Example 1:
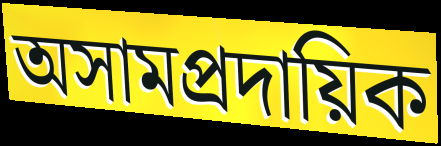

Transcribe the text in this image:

অসামপ্রদায়িক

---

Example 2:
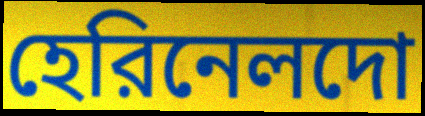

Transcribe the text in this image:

হেরিনেলদো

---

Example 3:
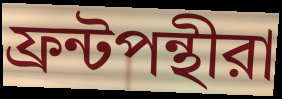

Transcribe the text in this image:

ফ্রন্টপন্থীরা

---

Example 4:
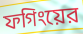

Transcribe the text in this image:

ফগিংয়ের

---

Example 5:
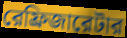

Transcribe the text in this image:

রেফ্রিজারেটার